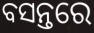
ବସନ୍ତରେ